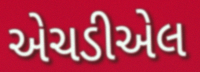
એચડીએલ